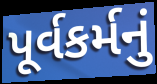
પૂર્વકર્મનું